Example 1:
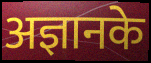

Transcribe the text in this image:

अज्ञानके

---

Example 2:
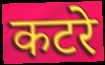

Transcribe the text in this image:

कटरे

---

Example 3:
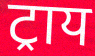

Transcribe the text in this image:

ट्राय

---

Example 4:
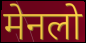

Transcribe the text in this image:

मेनलो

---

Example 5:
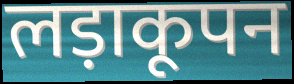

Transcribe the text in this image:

लड़ाकूपन